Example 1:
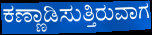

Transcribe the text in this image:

ಕಣ್ಣಾಡಿಸುತ್ತಿರುವಾಗ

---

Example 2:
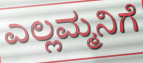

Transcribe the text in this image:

ಎಲ್ಲಮ್ಮನಿಗೆ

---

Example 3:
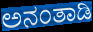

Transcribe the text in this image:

ಅನಂತಾಡಿ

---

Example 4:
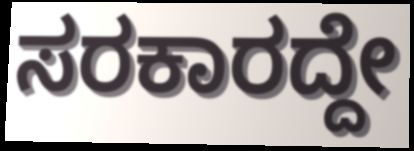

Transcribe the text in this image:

ಸರಕಾರದ್ದೇ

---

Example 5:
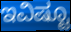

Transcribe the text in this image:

ಇವಿಷ್ಟೂ